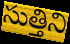
సుత్తిని